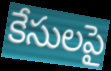
కేసులపై